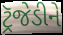
ટ્રૅજેડીને